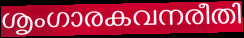
ശൃംഗാരകവനരീതി